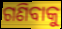
ଗଣିବାକୁ